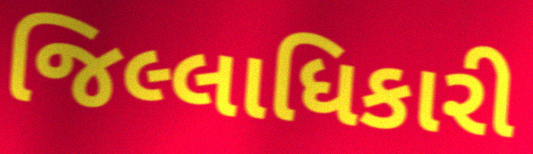
જિલ્લાધિકારી